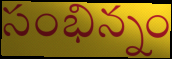
సంభిన్నం